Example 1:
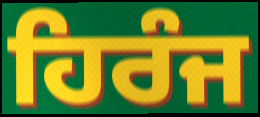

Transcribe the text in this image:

ਹਿਰੰਜ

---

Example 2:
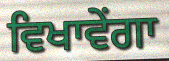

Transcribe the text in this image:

ਵਿਖਾਵੇਂਗਾ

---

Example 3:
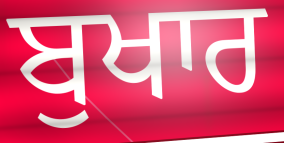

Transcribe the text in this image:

ਬੁਖਾਰ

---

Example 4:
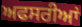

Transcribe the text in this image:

ਅਫਸਰੀਆਂ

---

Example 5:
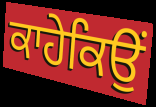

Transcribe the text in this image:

ਕਾਹੇਕਿਉਂ